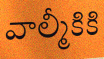
వాల్మీకికి